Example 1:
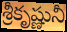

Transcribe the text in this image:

శ్రీకృష్ణునీ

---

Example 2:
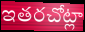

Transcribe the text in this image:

ఇతరచోట్లా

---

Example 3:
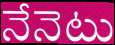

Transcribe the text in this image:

నేనెటు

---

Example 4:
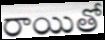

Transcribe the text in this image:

రాయితో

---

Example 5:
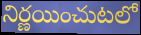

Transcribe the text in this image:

నిర్ణయించుటలో